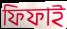
ফিফাই